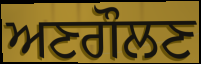
ਅਣਗੌਲਣ